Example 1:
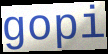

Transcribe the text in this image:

gopi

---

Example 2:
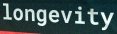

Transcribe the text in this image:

longevity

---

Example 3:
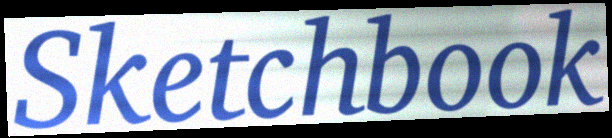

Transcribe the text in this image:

Sketchbook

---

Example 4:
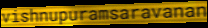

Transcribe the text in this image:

vishnupuramsaravanan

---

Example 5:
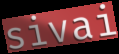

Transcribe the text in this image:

sivai